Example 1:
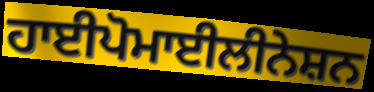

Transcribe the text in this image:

ਹਾਈਪੋਮਾਈਲੀਨੇਸ਼ਨ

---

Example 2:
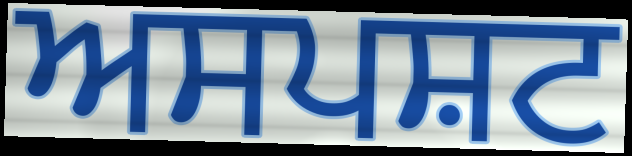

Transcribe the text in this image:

ਅਸਪਸ਼ਟ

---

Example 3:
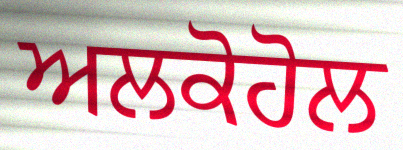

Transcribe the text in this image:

ਅਲਕੋਹੋਲ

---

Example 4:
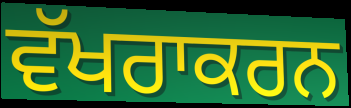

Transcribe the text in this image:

ਵੱਖਰਾਕਰਨ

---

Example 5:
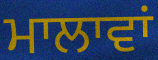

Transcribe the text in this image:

ਮਾਲਾਵਾਂ